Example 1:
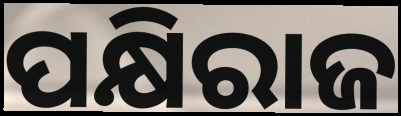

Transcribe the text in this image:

ପକ୍ଷିରାଜ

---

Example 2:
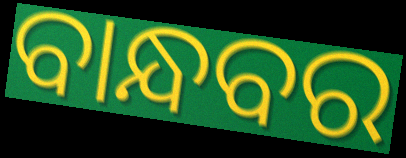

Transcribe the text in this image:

ବାନ୍ଧବର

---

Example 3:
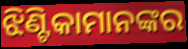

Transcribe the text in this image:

ଝିଣ୍ଟିକାମାନଙ୍କର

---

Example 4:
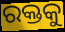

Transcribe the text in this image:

ରକ୍ତକୁ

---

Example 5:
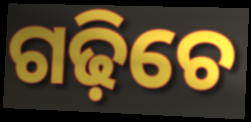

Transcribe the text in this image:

ଗଢ଼ିଚେ